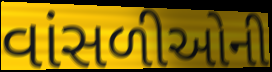
વાંસળીઓની